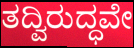
ತದ್ವಿರುದ್ಧವೇ